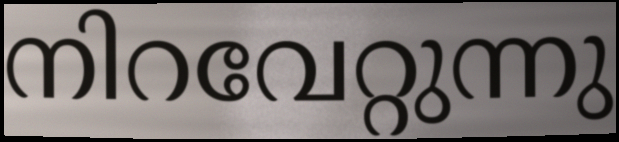
നിറവേറ്റുന്നു